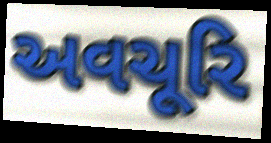
અવચૂરિ